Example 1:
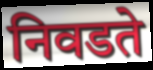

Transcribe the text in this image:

निवडते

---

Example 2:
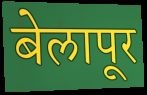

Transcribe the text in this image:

बेलापूर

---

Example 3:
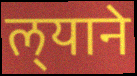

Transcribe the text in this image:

ल्याने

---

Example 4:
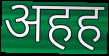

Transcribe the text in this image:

अहह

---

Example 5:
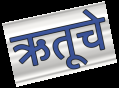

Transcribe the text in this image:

ऋतूचे